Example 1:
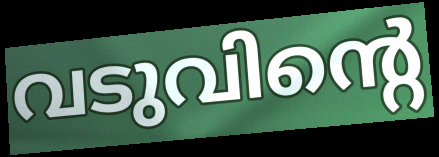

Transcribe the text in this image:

വടുവിന്റെ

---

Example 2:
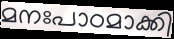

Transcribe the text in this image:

മനഃപാഠമാക്കി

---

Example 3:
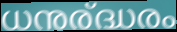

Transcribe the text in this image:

ധനുര്ദ്ധരം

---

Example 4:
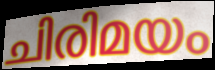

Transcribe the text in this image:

ചിരിമയം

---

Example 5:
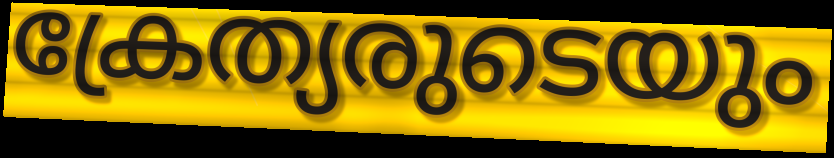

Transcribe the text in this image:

ക്രേത്യരുടെയും